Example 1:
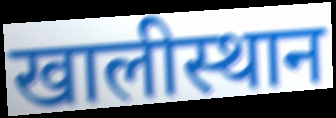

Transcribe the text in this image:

खालीस्थान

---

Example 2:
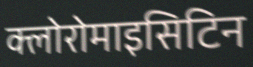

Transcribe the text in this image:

क्लोरोमाइसिटिन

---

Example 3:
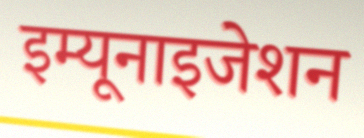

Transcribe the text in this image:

इम्यूनाइजेशन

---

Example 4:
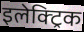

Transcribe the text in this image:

इलेक्ट्रिक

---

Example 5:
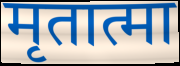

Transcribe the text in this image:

मृतात्मा